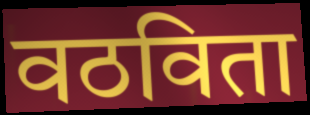
वठविता